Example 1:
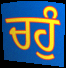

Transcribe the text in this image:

ਚਹੁੰ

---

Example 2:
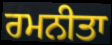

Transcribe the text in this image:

ਰਮਨੀਤਾ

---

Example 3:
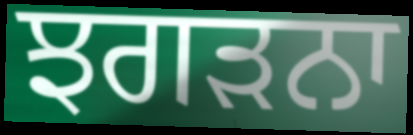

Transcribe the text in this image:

ਝਗੜਨਾ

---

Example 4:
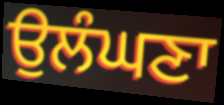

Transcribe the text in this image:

ਉਲੰਘਣਾ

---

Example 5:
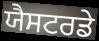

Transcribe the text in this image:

ਯੈਸਟਰਡੇ